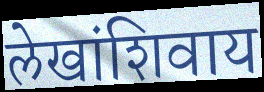
लेखांशिवाय